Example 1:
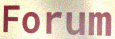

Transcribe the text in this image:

Forum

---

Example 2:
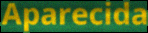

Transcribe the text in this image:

Aparecida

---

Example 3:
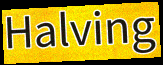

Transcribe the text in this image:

Halving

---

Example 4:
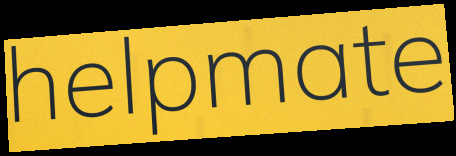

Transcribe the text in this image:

helpmate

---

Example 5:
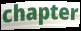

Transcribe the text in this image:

chapter